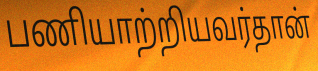
பணியாற்றியவர்தான்